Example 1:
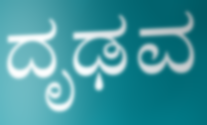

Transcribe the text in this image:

ದೃಢವ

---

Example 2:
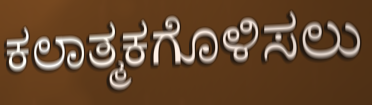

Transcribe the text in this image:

ಕಲಾತ್ಮಕಗೊಳಿಸಲು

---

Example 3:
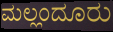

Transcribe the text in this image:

ಮಲ್ಲಂದೂರು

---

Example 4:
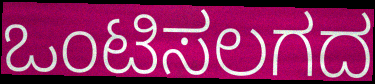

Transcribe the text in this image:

ಒಂಟಿಸಲಗದ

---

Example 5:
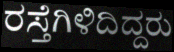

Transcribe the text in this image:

ರಸ್ತೆಗಿಳಿದಿದ್ದರು